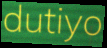
dutiyo